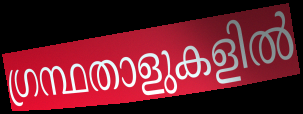
ഗ്രന്ഥതാളുകളിൽ